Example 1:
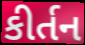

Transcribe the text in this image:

કીર્તન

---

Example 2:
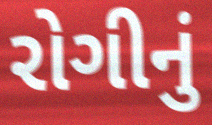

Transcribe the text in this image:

રોગીનું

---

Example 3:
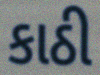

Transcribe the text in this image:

કાઠી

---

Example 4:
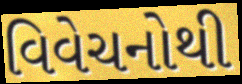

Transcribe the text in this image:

વિવેચનોથી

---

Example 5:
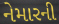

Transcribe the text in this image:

નેમારની